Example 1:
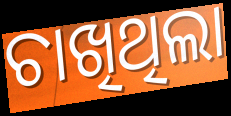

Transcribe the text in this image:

ଚାଖିଥିଲା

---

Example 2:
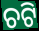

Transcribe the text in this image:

ଚଟି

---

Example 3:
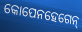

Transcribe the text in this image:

କୋପେନହେଗେନ୍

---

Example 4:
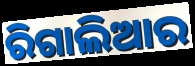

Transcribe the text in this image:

ରିଗାଲିଆର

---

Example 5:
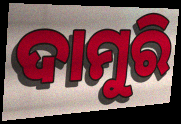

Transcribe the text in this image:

ଦାମୁରି